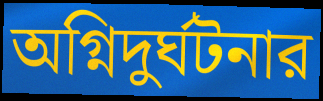
অগ্নিদুর্ঘটনার